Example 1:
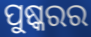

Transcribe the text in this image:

ପୁଷ୍କରର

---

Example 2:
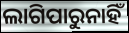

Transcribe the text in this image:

ଲାଗିପାରୁନାହିଁ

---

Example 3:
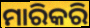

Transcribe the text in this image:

ମାରିକରି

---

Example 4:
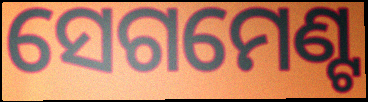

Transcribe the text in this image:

ସେଗମେଣ୍ଟ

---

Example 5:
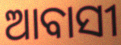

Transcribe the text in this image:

ଆବାସୀ